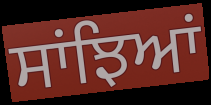
ਸਾਂਝਿਆਂ